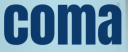
coma